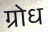
ग्रोध